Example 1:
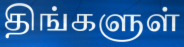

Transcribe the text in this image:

திங்களுள்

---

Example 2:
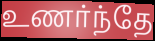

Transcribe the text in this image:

உணர்ந்தே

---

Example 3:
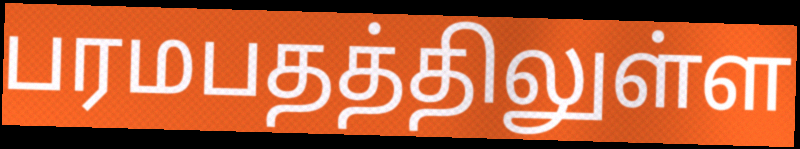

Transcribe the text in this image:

பரமபதத்திலுள்ள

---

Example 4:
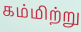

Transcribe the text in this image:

கம்மிற்று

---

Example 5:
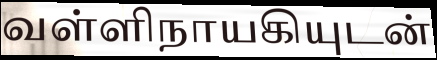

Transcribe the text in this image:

வள்ளிநாயகியுடன்